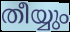
തീയ്യും